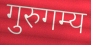
गुरुगम्य